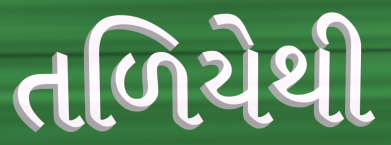
તળિયેથી